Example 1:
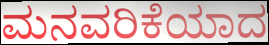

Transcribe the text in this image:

ಮನವರಿಕೆಯಾದ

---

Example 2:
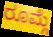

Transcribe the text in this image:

ರೂಮ್ಗೆ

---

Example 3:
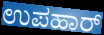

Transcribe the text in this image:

ಉಪಹಾರ್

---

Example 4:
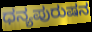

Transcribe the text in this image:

ಧನ್ಯಪುರುಷನ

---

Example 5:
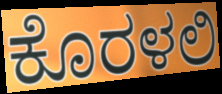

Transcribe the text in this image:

ಕೊರಳಲಿ